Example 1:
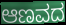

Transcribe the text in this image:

ಆಣವದ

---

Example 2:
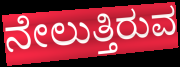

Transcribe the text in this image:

ನೇಲುತ್ತಿರುವ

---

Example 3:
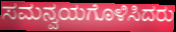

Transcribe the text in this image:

ಸಮನ್ವಯಗೊಳಿಸಿದರು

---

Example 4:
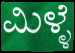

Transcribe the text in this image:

ಮಿಳ್ಳೆ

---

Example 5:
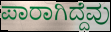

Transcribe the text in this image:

ಪಾರಾಗಿದ್ದೆವು